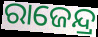
ରାଜେନ୍ଦ୍ର